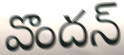
వొందన్